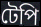
টেপি